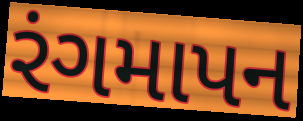
રંગમાપન